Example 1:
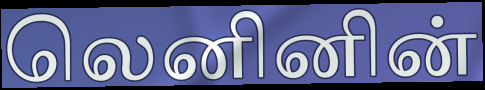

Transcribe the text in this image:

லெனினின்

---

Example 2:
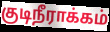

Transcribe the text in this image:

குடிநீராக்கம்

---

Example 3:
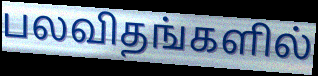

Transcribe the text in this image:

பலவிதங்களில்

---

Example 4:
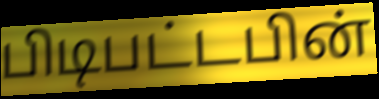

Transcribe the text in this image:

பிடிபட்டபின்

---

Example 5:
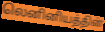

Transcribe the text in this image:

லெனினியத்தின்